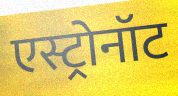
एस्ट्रोनॉट